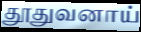
தூதுவனாய்